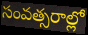
సంవత్సరాల్లో